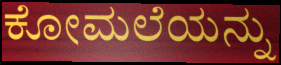
ಕೋಮಲೆಯನ್ನು